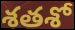
శతశో